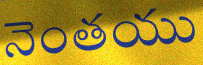
నెంతయు